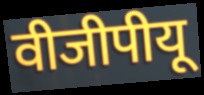
वीजीपीयू